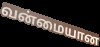
வன்மையான